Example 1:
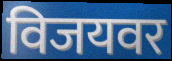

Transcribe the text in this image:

विजयवर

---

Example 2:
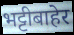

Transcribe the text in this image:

भट्टीबाहेर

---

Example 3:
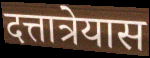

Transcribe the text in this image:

दत्तात्रेयास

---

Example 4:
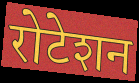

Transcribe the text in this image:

रोटेशन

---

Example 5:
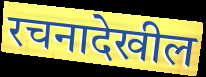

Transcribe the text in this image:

रचनादेखील